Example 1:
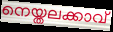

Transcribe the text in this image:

നെയ്തലക്കാവ്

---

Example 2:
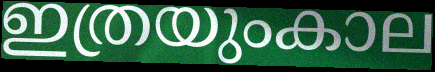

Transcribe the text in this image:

ഇത്രയുംകാല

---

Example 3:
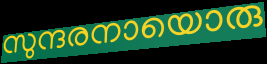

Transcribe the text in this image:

സുന്ദരനായൊരു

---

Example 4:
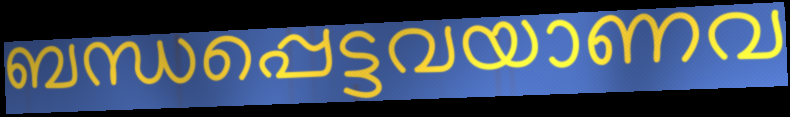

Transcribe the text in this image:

ബന്ധപ്പെട്ടവയാണവ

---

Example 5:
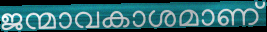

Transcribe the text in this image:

ജന്മാവകാശമാണ്